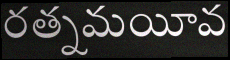
రత్నమయీవ